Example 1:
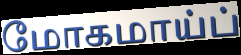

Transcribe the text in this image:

மோகமாய்ப்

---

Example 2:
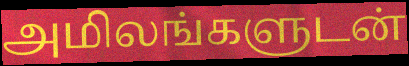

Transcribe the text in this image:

அமிலங்களுடன்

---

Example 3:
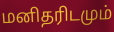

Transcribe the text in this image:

மனிதரிடமும்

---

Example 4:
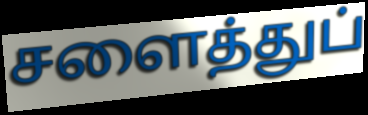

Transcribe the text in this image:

சளைத்துப்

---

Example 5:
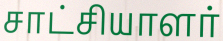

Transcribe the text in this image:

சாட்சியாளர்